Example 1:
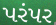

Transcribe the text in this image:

પરંપર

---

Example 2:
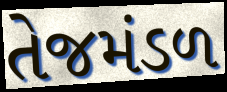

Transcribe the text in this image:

તેજમંડળ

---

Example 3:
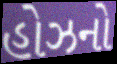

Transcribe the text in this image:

હોઝનો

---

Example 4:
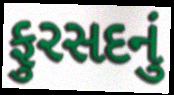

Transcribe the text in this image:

ફુરસદનું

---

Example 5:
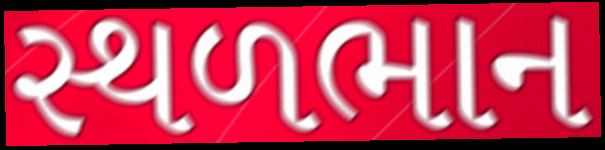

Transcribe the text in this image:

સ્થળભાન